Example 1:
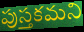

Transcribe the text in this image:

పుస్తకమని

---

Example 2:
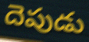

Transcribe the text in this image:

దెపుడు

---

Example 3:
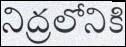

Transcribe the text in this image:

నిద్రలోనికి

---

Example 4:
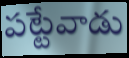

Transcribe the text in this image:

పట్టేవాడు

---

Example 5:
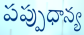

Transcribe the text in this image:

పప్పుధాన్య